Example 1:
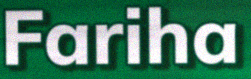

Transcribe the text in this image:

Fariha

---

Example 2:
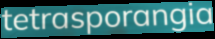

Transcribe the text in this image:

tetrasporangia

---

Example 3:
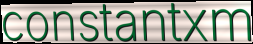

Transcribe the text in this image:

constantxm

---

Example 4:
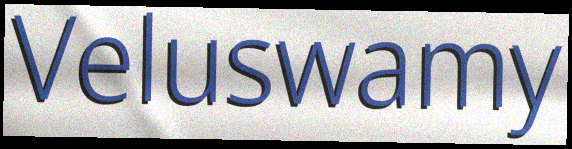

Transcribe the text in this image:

Veluswamy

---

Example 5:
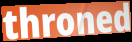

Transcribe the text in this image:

throned